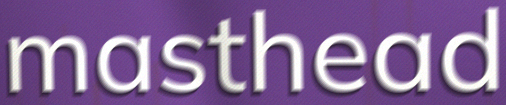
masthead